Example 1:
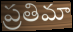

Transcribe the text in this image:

ప్రతిమా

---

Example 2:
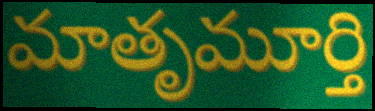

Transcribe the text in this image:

మాతృమూర్తి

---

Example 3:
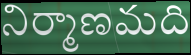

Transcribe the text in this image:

నిర్మాణమది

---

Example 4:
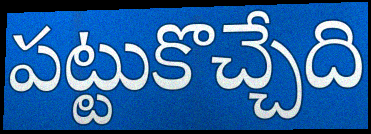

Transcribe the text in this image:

పట్టుకొచ్చేది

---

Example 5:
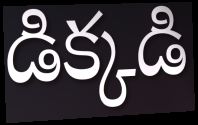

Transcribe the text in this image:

డిక్కడి